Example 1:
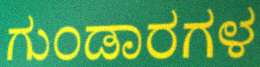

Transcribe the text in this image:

ಗುಂಡಾರಗಳ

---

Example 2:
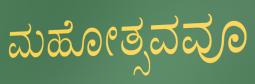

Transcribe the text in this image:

ಮಹೋತ್ಸವವೂ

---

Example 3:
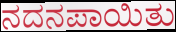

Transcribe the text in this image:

ನದನಪಾಯಿತು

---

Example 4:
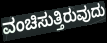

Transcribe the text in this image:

ವಂಚಿಸುತ್ತಿರುವುದು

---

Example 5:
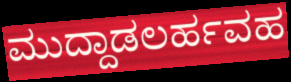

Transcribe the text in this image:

ಮುದ್ದಾಡಲರ್ಹವಹ